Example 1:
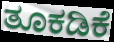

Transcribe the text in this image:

ತೂಕಡಿಕೆ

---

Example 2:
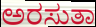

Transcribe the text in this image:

ಅರಸುತಾ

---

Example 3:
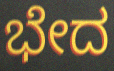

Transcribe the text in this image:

ಭೇದ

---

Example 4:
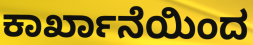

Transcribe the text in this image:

ಕಾರ್ಖಾನೆಯಿಂದ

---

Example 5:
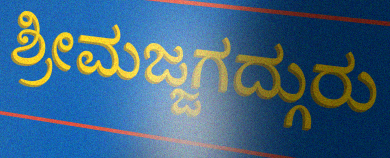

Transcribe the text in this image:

ಶ್ರೀಮಜ್ಜಗದ್ಗುರು